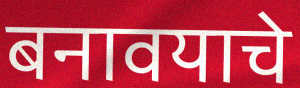
बनावयाचे